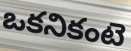
ఒకనికంటె